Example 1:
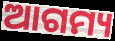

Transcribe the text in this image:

ଆଗମ୍ୟ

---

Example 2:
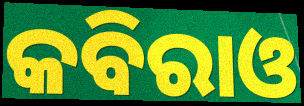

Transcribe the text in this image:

କବିରାଓ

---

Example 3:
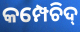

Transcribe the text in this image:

କମ୍ପେଚିଦ୍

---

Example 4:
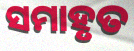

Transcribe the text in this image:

ସମାହୃତ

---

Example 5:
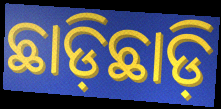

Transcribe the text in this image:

ଛାଡ଼ିଛାଡ଼ି